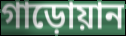
গাড়োয়ান